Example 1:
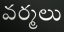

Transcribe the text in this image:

వర్మలు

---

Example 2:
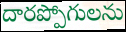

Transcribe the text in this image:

దారప్పోగులను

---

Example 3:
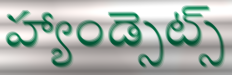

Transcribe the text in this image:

హ్యాండ్సెట్స్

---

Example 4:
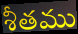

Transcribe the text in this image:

శీతము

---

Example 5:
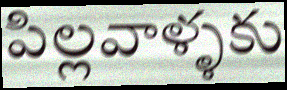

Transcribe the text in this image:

పిల్లవాళ్ళకు